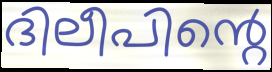
ദിലീപിന്റെ